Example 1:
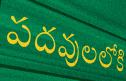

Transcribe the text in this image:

పదవులలోకి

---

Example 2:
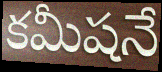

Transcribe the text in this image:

కమీషనే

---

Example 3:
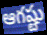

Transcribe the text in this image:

ఆగష్టు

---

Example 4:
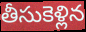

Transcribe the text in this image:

తీసుకెళ్లిన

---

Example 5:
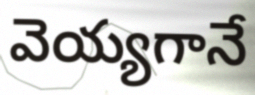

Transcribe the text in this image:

వెయ్యగానే